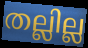
തല്ലില്ല